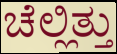
ಚೆಲ್ಲಿತ್ತು